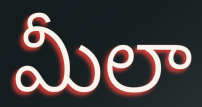
మీలా